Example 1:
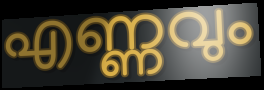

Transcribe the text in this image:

എണ്ണവും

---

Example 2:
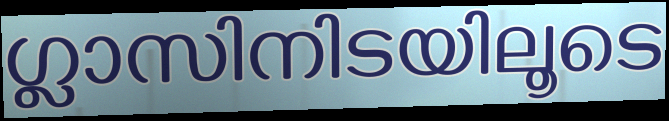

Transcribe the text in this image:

ഗ്ലാസിനിടയിലൂടെ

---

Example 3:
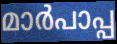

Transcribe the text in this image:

മാർപാപ്പ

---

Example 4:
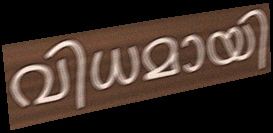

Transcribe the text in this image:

വിധമായി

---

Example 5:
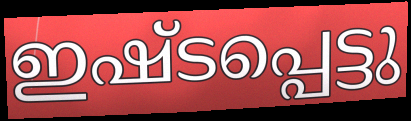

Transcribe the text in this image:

ഇഷ്ടപ്പെട്ടു